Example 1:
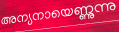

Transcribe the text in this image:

അന്യനായെണ്ണുന്നു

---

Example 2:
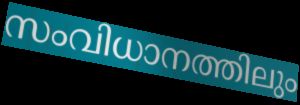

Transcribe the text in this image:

സംവിധാനത്തിലും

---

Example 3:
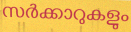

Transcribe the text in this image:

സർക്കാറുകളും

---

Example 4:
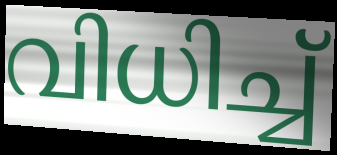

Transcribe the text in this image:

വിധിച്ച്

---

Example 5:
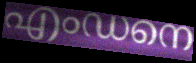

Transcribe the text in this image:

എംഡനെ